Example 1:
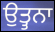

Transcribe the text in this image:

ਉਤ੍ਤਨਾ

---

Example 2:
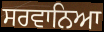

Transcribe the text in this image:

ਸਰਵਾਨਿਆ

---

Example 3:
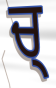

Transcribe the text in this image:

ਚ੍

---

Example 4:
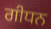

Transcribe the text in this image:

ਗੀਧਨ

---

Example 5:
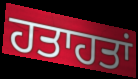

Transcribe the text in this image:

ਹਤਾਹਤਾਂ